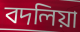
বদলিয়া